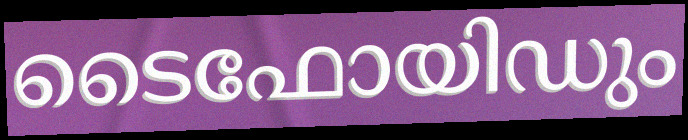
ടൈഫോയിഡും